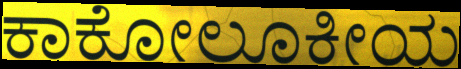
ಕಾಕೋಲೂಕೀಯ